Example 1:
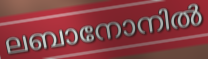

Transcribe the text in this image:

ലബാനോനിൽ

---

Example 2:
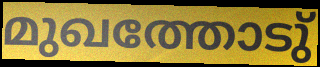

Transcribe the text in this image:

മുഖത്തോടു്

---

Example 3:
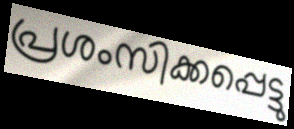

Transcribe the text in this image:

പ്രശംസിക്കപ്പെട്ടു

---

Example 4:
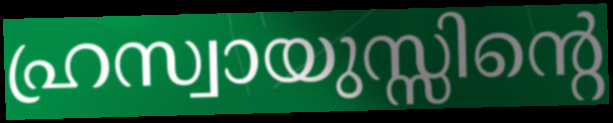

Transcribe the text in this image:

ഹ്രസ്വായുസ്സിന്റെ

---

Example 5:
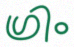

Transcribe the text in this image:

ഗ്രിം